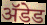
ॲडेड